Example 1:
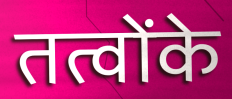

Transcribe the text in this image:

तत्वोंके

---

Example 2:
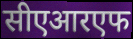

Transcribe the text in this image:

सीएआरएफ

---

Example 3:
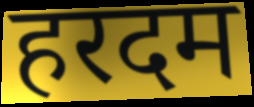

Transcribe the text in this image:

हरदम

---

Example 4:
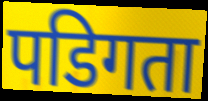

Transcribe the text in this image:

पडिगता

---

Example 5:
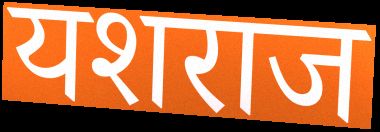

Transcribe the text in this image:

यशराज